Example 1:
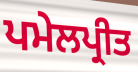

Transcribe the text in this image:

ਪਮੇਲਪ੍ਰੀਤ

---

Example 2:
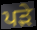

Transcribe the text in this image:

ਪੜੇ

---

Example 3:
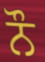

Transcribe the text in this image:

ਨੌ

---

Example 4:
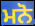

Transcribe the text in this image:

ਮਨੋ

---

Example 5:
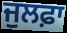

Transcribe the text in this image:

ਜੁਲਫ਼ਾ